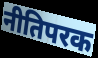
नीतिपरक